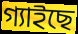
গ্যাইছে